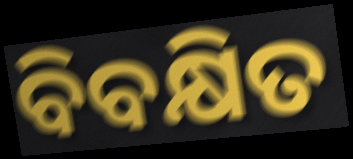
ବିବକ୍ଷିତ